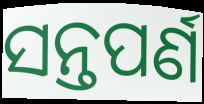
ସନ୍ତପର୍ଣ